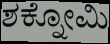
ಶಕ್ನೋಮಿ